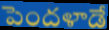
పెందళాడే